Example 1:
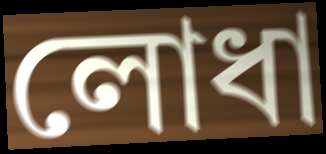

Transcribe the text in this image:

লোধা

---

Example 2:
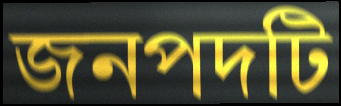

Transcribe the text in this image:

জনপদটি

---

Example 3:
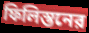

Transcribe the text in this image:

ফিলিস্তনের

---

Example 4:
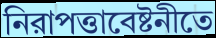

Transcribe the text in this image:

নিরাপত্তাবেষ্টনীতে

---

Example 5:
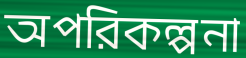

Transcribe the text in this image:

অপরিকল্পনা